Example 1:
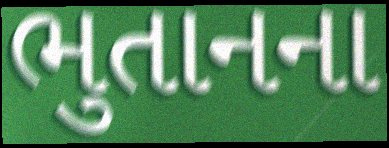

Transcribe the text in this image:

ભુતાનના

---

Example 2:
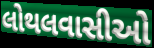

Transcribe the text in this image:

લોથલવાસીઓ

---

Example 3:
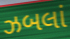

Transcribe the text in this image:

ઝબલાં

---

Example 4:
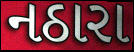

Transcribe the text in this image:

નઠારા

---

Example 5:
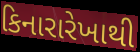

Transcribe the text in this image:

કિનારારેખાથી